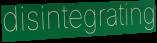
disintegrating